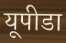
यूपीडा